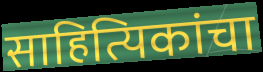
साहित्यिकांचा